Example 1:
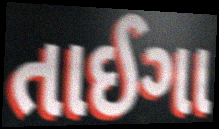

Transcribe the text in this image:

તાઈગા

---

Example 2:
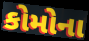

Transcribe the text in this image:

કોમોના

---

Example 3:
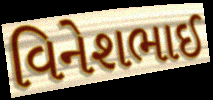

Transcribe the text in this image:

વિનેશભાઈ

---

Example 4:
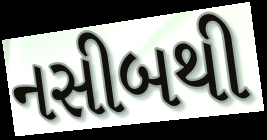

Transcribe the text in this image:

નસીબથી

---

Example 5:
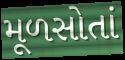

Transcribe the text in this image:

મૂળસોતાં